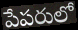
పేపరులో